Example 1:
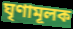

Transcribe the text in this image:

ঘৃণামূলক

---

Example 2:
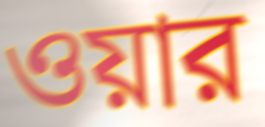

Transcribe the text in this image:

ওয়ার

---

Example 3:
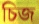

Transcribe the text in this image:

চিজ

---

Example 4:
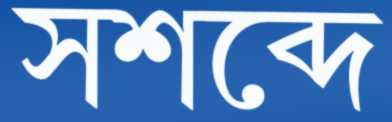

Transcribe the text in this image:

সশব্দে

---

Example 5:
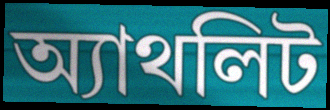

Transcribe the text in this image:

অ্যাথলিট